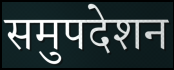
समुपदेशन